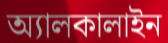
অ্যালকালাইন